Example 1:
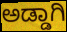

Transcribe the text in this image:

ಅಡ್ಡಾಗಿ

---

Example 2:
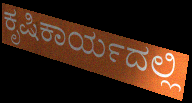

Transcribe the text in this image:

ಕೃಷಿಕಾರ್ಯದಲ್ಲಿ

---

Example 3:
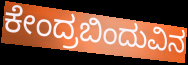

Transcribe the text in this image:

ಕೇಂದ್ರಬಿಂದುವಿನ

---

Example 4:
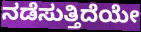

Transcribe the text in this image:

ನಡೆಸುತ್ತಿದೆಯೇ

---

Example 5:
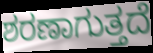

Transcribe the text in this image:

ಶರಣಾಗುತ್ತದೆ